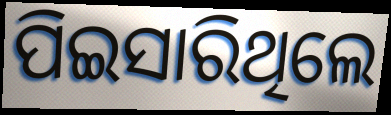
ପିଇସାରିଥିଲେ